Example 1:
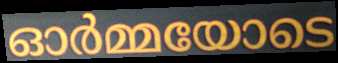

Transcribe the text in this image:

ഓർമ്മയോടെ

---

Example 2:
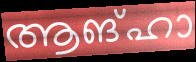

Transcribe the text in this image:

ആങ്ഹാ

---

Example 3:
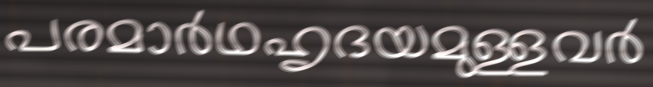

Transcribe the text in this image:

പരമാർഥഹൃദയമുള്ളവർ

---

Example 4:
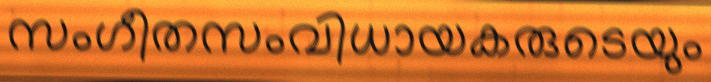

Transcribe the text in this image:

സംഗീതസംവിധായകരുടെയും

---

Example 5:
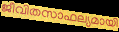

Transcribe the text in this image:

ജീവിതസാഫല്യമായി